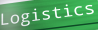
Logistics